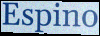
Espino